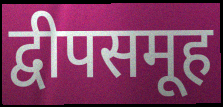
द्वीपसमूह